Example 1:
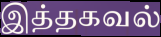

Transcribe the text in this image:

இத்தகவல்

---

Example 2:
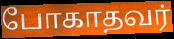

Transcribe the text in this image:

போகாதவர்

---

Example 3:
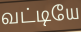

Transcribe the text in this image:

வட்டியே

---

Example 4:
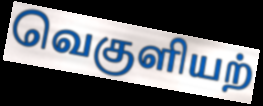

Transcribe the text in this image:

வெகுளியற்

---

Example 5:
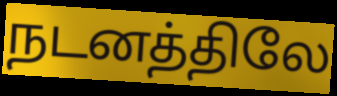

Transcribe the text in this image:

நடனத்திலே